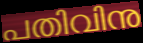
പതിവിനു